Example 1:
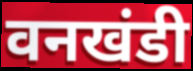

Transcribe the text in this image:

वनखंडी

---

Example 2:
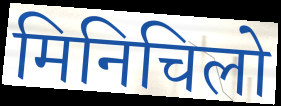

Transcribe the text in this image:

मिनिचिलो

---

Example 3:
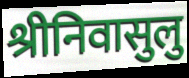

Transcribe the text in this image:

श्रीनिवासुलु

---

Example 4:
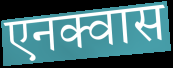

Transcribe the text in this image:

एनक्वास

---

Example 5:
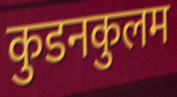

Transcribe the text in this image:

कुडनकुलम